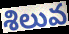
శిలువ